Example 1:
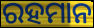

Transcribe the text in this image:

ରହମାନ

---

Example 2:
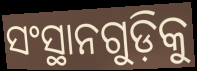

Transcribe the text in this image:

ସଂସ୍ଥାନଗୁଡ଼ିକୁ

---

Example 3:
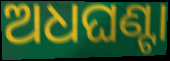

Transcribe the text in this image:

ଅଧଘଣ୍ଟା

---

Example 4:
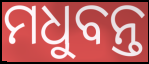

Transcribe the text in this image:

ମଧୁବନ୍ତ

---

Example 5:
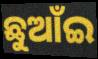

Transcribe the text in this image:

ଛୁଆଁଇ